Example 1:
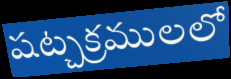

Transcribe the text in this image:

షట్చక్రములలో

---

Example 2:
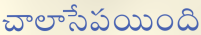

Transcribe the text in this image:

చాలాసేపయింది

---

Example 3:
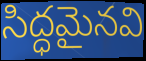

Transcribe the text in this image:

సిద్ధమైనవి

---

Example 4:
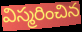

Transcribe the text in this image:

విస్మరించిన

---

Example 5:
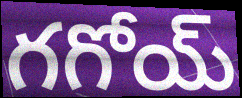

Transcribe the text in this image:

గగోయ్